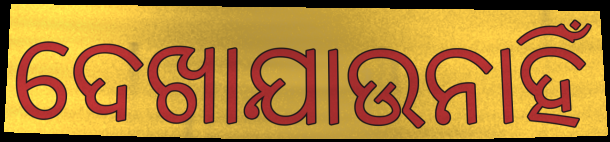
ଦେଖାଯାଉନାହିଁ